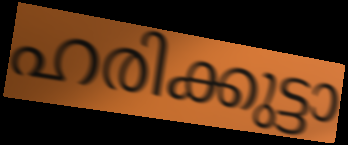
ഹരിക്കുട്ടാ